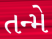
તન્મે